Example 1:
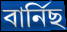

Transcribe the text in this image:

বাৰ্নিছ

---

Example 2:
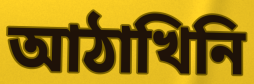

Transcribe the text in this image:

আঠাখিনি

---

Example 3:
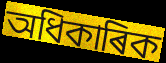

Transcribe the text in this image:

অধিকাৰিক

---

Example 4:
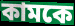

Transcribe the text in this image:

কামকে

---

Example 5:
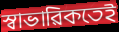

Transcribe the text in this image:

স্বাভাৱিকতেই